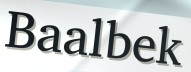
Baalbek